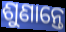
ଶୁଣାନ୍ତେ